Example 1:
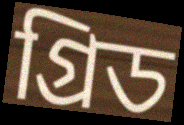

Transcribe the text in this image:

গ্রিড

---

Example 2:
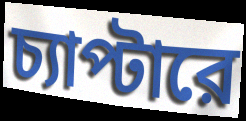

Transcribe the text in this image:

চ্যাপ্টারে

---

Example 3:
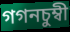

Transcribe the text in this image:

গগনচুম্বী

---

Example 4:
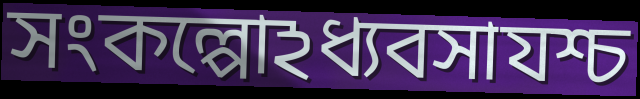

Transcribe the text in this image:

সংকল্পোঽধ্যবসাযশ্চ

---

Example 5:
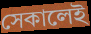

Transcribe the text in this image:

সেকালেই